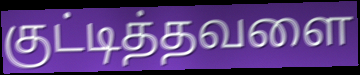
குட்டித்தவளை